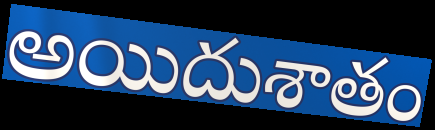
అయిదుశాతం